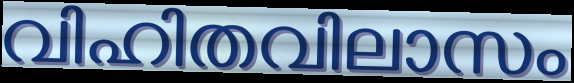
വിഹിതവിലാസം